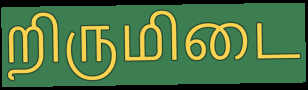
றிருமிடை